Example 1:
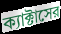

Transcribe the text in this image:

ক্যাক্টাসের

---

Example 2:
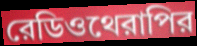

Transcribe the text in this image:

রেডিওথেরাপির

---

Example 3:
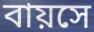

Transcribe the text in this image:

বায়সে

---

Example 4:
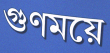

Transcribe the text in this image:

গুণময়ে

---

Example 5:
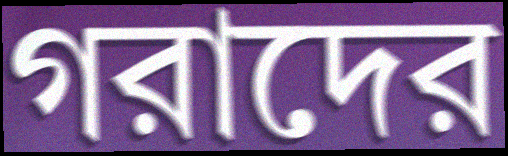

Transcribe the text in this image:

গরাদের